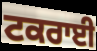
ਟਕਰਾਈ